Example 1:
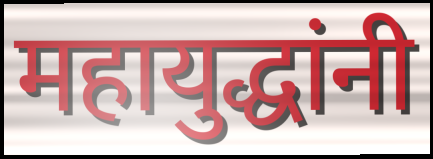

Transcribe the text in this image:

महायुद्धांनी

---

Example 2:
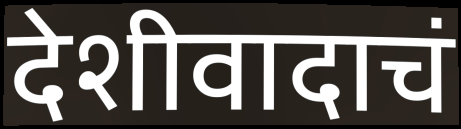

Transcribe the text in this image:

देशीवादाचं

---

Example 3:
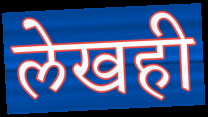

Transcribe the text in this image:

लेखही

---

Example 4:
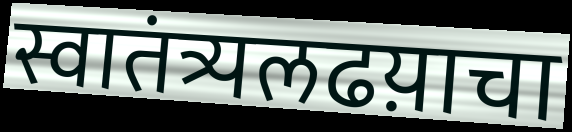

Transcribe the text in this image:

स्वातंत्र्यलढय़ाचा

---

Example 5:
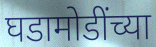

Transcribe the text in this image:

घडामोडींच्या